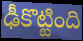
ఢీకొట్టింది